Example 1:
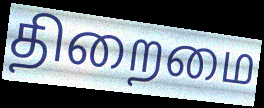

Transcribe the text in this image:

திறைமை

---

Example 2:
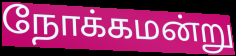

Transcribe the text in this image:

நோக்கமன்று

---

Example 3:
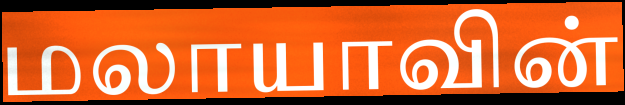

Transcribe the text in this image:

மலாயாவின்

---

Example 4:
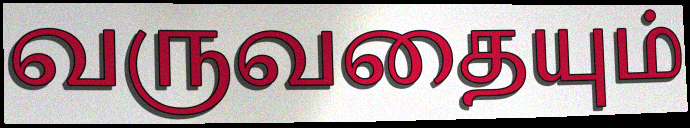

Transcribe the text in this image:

வருவதையும்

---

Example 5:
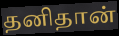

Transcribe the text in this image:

தனிதான்